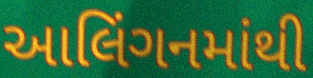
આલિંગનમાંથી